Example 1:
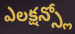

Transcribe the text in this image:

ఎలక్షన్స్లో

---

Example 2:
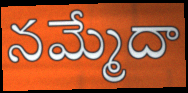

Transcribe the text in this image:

నమ్మేదా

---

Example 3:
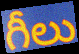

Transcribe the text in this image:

గీలు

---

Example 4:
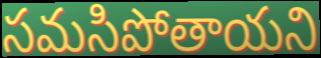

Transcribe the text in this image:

సమసిపోతాయని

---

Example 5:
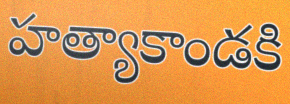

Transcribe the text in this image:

హత్యాకాండకి